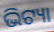
ଭିଟ୍ୟା